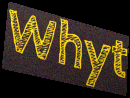
Whyt